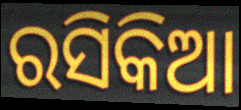
ରସିକିଆ